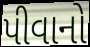
પીવાનો